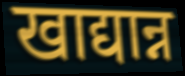
खाद्यान्न